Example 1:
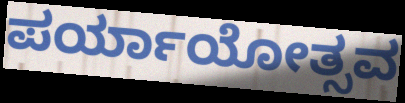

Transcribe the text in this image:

ಪರ್ಯಾಯೋತ್ಸವ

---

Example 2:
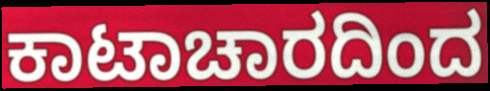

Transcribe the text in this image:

ಕಾಟಾಚಾರದಿಂದ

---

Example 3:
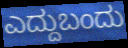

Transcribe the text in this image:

ಎದ್ದುಬಂದು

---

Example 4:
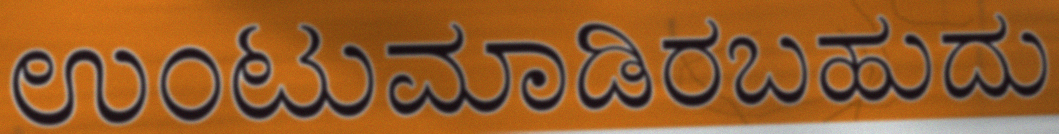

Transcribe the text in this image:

ಉಂಟುಮಾಡಿರಬಹುದು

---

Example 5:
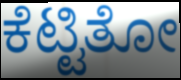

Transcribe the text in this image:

ಕೆಟ್ಟಿತೋ